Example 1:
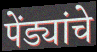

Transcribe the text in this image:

पेंड्यांचे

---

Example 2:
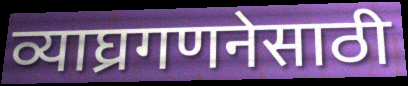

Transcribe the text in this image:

व्याघ्रगणनेसाठी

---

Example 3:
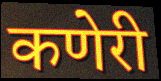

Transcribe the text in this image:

कणेरी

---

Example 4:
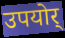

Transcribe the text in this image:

उपयोर्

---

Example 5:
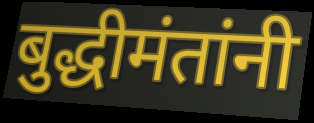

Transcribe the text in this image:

बुद्धीमंतांनी